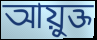
আয়ুক্ত